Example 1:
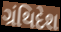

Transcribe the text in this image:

ગ્રંથિદેશ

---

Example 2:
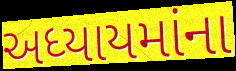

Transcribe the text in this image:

અધ્યાયમાંના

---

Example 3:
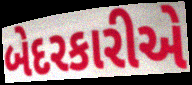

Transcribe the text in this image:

બેદરકારીએ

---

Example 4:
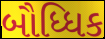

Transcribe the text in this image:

બૌધ્ધિક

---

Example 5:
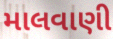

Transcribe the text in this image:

માલવાણી